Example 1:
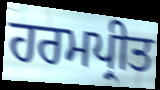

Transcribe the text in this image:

ਹਰਮਪ੍ਰੀਤ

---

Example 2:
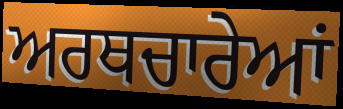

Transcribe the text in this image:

ਅਰਥਚਾਰੇਆਂ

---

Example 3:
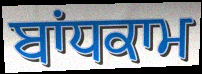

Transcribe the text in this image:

ਬਾਂਧਕਾਮ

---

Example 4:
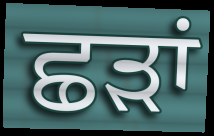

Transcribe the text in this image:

ਛੜਾਂ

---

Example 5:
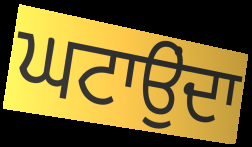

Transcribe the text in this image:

ਘਟਾਉੁਂਦਾ